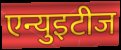
एन्युइटीज